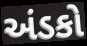
અંડકો